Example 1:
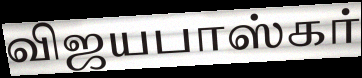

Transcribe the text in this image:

விஜயபாஸ்கர்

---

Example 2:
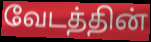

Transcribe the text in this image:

வேடத்தின்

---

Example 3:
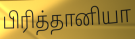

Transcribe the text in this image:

பிரித்தானியா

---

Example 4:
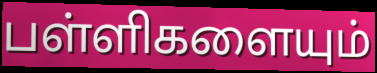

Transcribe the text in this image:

பள்ளிகளையும்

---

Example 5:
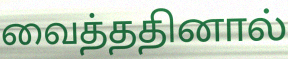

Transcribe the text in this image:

வைத்ததினால்